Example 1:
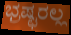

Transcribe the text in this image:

ಭ್ರಷ್ಟರಲ್ಲ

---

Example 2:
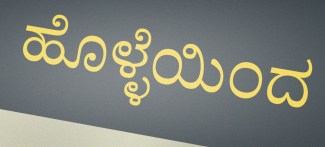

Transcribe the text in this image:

ಹೊಳ್ಳೆಯಿಂದ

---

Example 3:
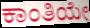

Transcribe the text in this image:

ಕಾಂತಿಯೇ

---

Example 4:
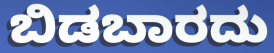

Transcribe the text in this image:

ಬಿಡಬಾರದು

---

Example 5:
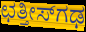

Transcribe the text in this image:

ಛತ್ತೀಸ್‍ಗಢ